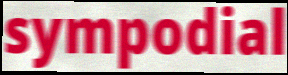
sympodial